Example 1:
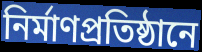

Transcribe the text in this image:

নির্মাণপ্রতিষ্ঠানে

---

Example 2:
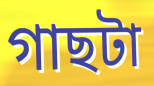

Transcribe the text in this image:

গাছটা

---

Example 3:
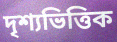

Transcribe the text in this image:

দৃশ্যভিত্তিক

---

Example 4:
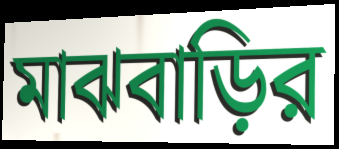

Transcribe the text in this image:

মাঝবাড়ির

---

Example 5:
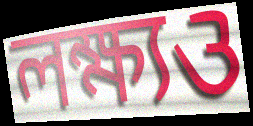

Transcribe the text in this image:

লক্ষ্যও